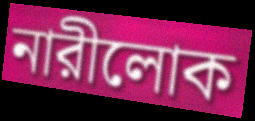
নারীলোক